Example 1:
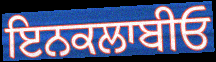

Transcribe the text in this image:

ਇਨਕਲਾਬੀਓ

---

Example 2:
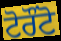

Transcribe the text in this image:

ਟੋਰੌੰਟੋ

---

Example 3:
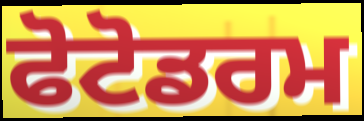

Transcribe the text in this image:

ਫੋਟੋਡਰਮ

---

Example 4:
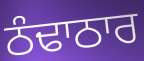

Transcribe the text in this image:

ਠੰਢਾਠਾਰ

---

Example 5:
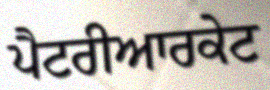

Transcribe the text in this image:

ਪੈਟਰੀਆਰਕੇਟ